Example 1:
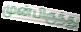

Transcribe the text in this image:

முன்பிருந்து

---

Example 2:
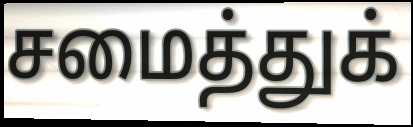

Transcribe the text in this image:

சமைத்துக்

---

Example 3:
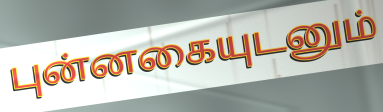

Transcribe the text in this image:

புன்னகையுடனும்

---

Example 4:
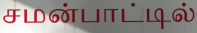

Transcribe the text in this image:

சமன்பாட்டில்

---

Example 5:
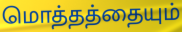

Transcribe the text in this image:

மொத்தத்தையும்